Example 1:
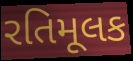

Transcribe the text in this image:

રતિમૂલક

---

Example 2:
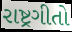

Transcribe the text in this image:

રાષ્ટ્રગીતો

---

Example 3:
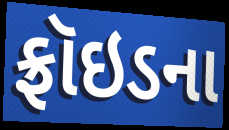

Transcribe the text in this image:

ફ્રૉઇડના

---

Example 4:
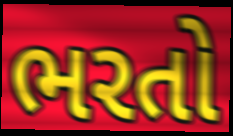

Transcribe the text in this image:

ભરતો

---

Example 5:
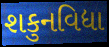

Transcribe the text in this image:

શકુનવિદ્યા